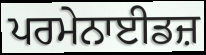
ਪਰਮੇਨਾਈਡਜ਼